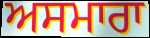
ਅਸਮਾਰਾ